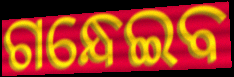
ଗନ୍ଧେଇବ